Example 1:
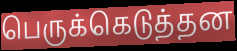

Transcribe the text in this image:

பெருக்கெடுத்தன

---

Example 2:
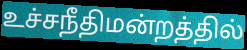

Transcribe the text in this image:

உச்சநீதிமன்றத்தில்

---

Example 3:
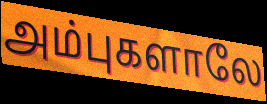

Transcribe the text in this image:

அம்புகளாலே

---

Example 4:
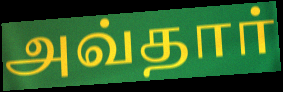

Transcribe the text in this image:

அவ்தார்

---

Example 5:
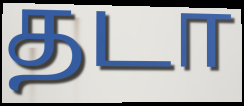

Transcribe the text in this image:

தடா